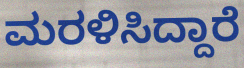
ಮರಳಿಸಿದ್ದಾರೆ